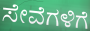
ಸೇವೆಗಳಿಗೆ